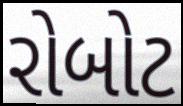
રોબોટ